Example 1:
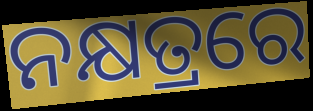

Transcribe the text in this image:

ନକ୍ଷତ୍ରରେ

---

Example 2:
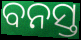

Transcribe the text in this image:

ବନସ୍ତ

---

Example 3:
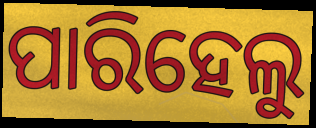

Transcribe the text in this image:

ପାରିହେଲୁ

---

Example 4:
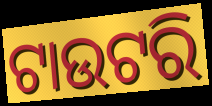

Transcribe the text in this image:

ଟାଉଟରି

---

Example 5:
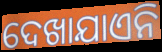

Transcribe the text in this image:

ଦେଖାଯାଏନି